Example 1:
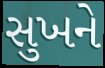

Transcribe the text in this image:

સુખને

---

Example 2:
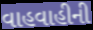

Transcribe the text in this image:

વાહવાહીની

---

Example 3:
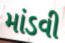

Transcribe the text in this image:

માંડવી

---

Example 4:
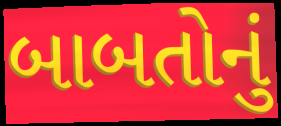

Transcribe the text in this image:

બાબતોનું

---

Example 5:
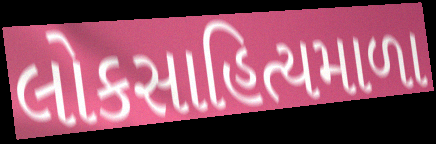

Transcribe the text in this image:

લોકસાહિત્યમાળા